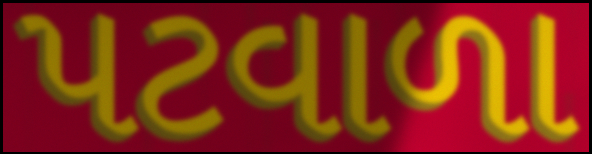
પટવાળા